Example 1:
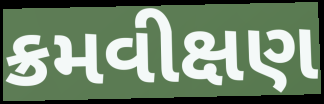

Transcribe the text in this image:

ક્રમવીક્ષણ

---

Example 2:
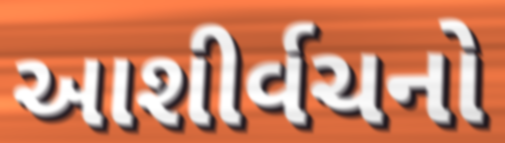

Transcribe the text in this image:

આશીર્વચનો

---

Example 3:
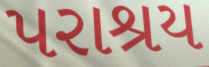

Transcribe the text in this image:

પરાશ્રય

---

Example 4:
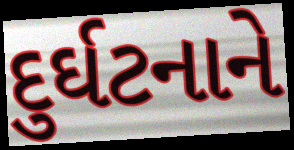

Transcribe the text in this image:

દુર્ઘટનાને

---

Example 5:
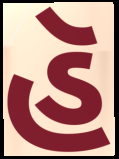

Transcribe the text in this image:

હૅ